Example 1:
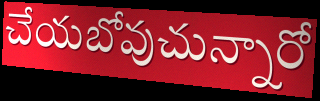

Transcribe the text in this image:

చేయబోవుచున్నారో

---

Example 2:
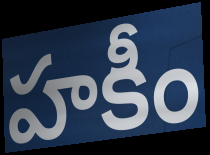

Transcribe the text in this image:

హకీం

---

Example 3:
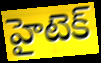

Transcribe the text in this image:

హైటెక్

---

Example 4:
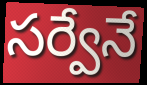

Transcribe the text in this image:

సర్వేనే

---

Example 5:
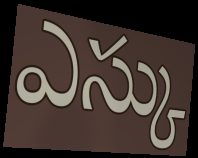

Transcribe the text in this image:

ఎస్కు